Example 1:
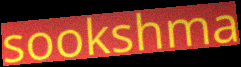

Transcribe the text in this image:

sookshma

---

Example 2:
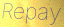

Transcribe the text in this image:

Repay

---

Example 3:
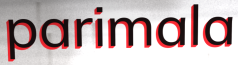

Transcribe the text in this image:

parimala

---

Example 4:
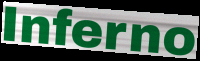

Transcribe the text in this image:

Inferno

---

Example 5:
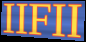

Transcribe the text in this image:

IIFII